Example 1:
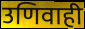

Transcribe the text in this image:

उणिवाही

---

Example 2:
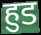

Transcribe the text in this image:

हुड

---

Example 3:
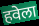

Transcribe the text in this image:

हवेला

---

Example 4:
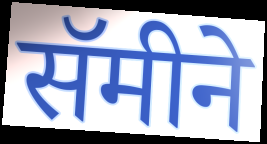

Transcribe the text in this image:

सॅमीने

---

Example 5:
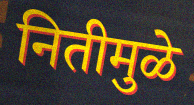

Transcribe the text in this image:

नितीमुळे